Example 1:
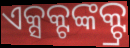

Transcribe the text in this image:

ଏକ୍ସକ୍ଟଙ୍କକ୍ଟ୍ର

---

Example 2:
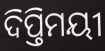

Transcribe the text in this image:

ଦିପ୍ତିମୟୀ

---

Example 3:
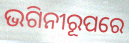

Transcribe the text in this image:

ଭଗିନୀରୂପରେ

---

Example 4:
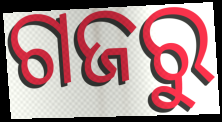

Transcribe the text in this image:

ଗଜରୁ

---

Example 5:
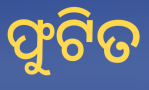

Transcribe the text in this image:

ଫୁଟିତ